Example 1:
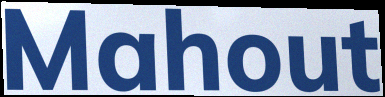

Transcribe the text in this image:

Mahout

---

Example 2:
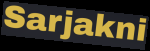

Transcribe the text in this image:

Sarjakni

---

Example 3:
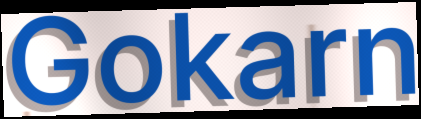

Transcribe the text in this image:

Gokarn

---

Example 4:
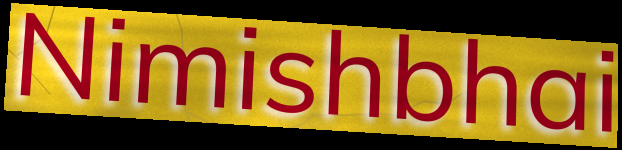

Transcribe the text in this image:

Nimishbhai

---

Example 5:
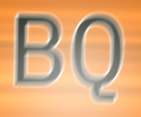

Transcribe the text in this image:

BQ